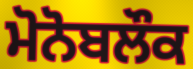
ਮੋਨੋਬਲੌਕ